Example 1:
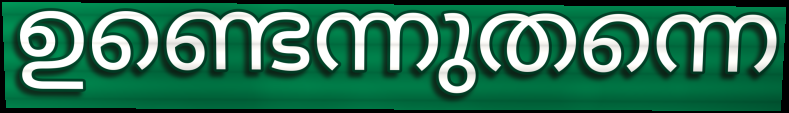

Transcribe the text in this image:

ഉണ്ടെന്നുതന്നെ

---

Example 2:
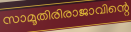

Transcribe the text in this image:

സാമൂതിരിരാജാവിന്റെ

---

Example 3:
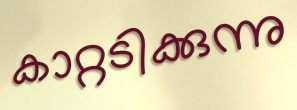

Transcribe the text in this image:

കാറ്റടിക്കുന്നു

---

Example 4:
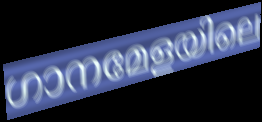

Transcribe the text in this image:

ഗാനമേളയിലെ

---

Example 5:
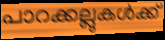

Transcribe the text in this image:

പാറക്കല്ലുകൾക്ക്